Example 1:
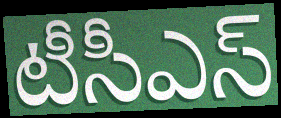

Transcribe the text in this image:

టీసీఎస్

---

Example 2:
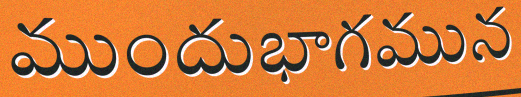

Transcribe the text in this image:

ముందుభాగమున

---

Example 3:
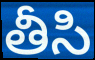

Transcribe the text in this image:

తీసి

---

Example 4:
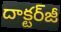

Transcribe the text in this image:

దాక్టర్‌జీ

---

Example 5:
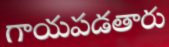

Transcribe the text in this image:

గాయపడతారు